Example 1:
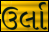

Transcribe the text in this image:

ઉર્લા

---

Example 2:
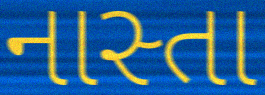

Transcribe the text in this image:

નાસ્તા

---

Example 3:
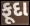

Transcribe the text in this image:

ફૂદા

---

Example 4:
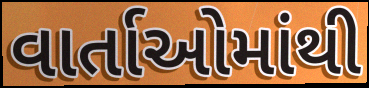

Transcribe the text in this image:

વાર્તાઓમાંથી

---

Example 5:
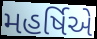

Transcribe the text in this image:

મહર્ષિએ